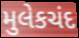
મુલેકચંદ